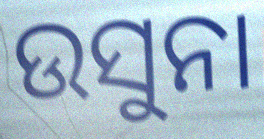
ଉସୁନା